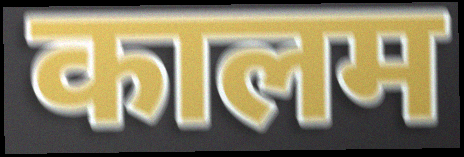
कालम